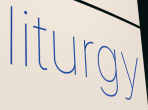
liturgy